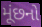
મૂંછનો